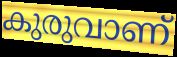
കുരുവാണ്